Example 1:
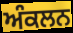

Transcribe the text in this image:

ਅੰਕਲਨ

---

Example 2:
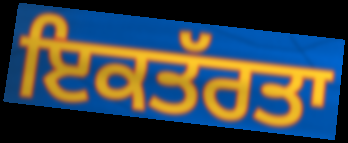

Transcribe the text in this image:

ਇਕਤੱਰਤਾ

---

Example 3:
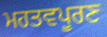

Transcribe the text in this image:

ਮਹਤਵਪੂਰਣ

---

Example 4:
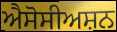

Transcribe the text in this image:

ਐਸੋਸੀਅਸ਼ਨ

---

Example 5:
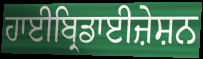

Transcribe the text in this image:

ਹਾਈਬ੍ਰਿਡਾਈਜ਼ੇਸ਼ਨ